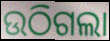
ଉଠିଗଲା